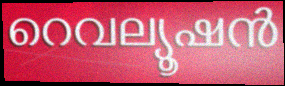
റെവല്യൂഷൻ